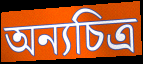
অন্যচিত্র